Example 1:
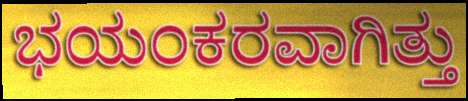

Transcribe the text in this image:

ಭಯಂಕರವಾಗಿತ್ತು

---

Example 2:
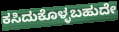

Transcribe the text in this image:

ಕಸಿದುಕೊಳ್ಳಬಹುದೇ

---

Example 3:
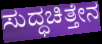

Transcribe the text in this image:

ಸುದ್ಧಚಿತ್ತೇನ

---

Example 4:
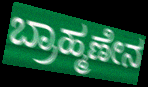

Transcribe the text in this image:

ಬ್ರಾಹ್ಮಣೇನ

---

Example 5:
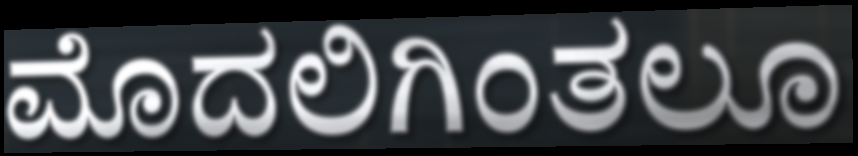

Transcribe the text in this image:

ಮೊದಲಿಗಿಂತಲೂ